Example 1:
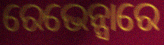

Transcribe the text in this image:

ରେଭେନ୍ସାରେ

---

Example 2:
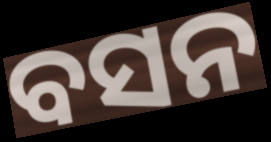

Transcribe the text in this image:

ବସନ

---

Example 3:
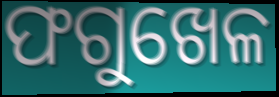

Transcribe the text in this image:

ଫଗୁଖେଳ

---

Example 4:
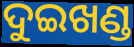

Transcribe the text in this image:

ଦୁଇଖଣ୍ଡ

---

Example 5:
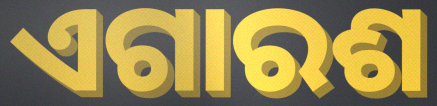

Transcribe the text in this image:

ଏଗାରଶ